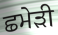
ਛਮੇੜੀ